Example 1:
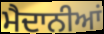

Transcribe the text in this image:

ਮੈਦਾਨੀਆਂ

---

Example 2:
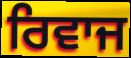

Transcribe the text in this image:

ਰਿਵਾਜ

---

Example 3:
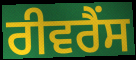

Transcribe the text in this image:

ਰੀਵਰੈਂਸ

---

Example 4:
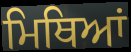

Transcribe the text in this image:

ਮਿਥਿਆਂ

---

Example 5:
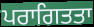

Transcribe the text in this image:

ਪਰਾਗਿਤਤਾ